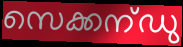
സെക്കന്ഡു